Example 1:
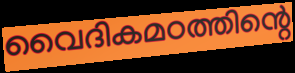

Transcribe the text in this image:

വൈദികമഠത്തിന്റെ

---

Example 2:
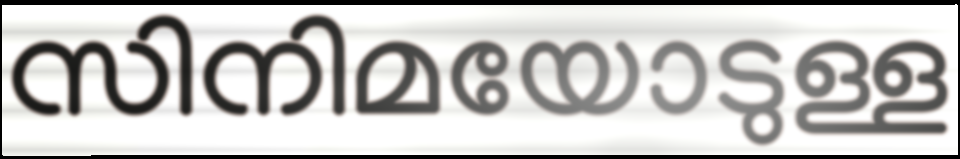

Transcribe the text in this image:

സിനിമയോടുള്ള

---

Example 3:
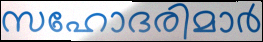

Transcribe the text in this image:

സഹോദരിമാർ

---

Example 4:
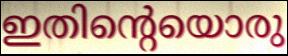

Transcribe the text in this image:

ഇതിന്റെയൊരു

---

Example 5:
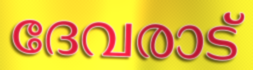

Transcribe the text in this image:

ദേവരാട്